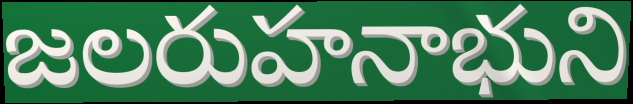
జలరుహనాభుని